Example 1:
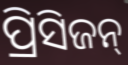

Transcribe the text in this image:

ପ୍ରିସିଜନ୍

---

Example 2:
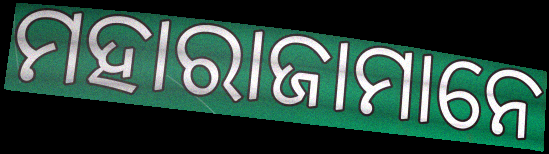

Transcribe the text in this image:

ମହାରାଜାମାନେ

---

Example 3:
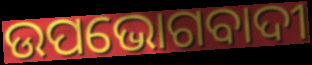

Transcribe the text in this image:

ଉପଭୋଗବାଦୀ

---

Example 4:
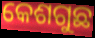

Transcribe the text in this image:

କେଶଗୁଛ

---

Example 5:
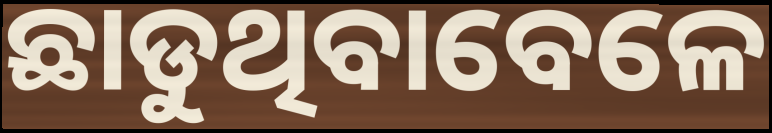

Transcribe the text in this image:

ଛାଡୁଥିବାବେଳେ